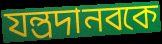
যন্ত্রদানবকে